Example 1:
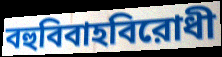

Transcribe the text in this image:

বহুবিবাহবিরোধী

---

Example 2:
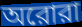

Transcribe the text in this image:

অরোরা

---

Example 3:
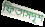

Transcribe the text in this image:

ফিতাসদৃশ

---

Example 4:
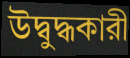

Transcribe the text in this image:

উদ্বুদ্ধকারী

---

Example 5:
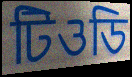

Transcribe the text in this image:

টিওডি